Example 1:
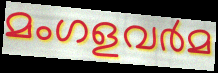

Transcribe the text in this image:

മംഗളവർമ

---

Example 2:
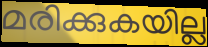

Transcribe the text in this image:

മരിക്കുകയില്ല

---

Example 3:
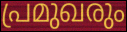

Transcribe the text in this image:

പ്രമുഖരും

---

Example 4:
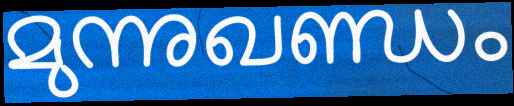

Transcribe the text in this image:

മുന്നുഖണ്ഡം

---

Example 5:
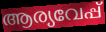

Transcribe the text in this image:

ആര്യവേപ്പ്